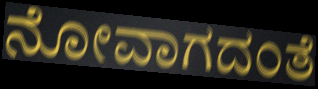
ನೋವಾಗದಂತೆ